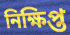
নিক্ষিপ্ত